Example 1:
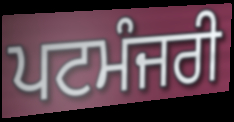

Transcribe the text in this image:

ਪਟਮੰਜਰੀ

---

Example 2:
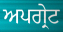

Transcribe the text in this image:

ਅਪਗ੍ਰੇਟ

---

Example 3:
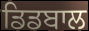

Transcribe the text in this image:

ਡਿਡਬਾਲ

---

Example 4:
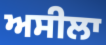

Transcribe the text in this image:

ਅਸੀਲਾ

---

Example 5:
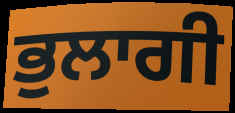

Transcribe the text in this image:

ਭੁਲਾਗੀ